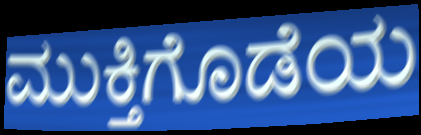
ಮುಕ್ತಿಗೊಡೆಯ